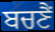
ਬਚਣੈਂ